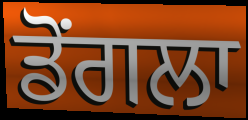
ਡੋਂਗਲਾ